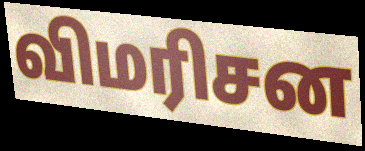
விமரிசன